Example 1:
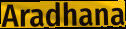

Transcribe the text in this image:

Aradhana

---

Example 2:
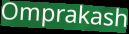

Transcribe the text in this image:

Omprakash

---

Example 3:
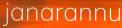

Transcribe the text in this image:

janarannu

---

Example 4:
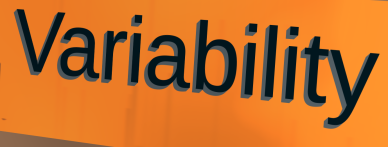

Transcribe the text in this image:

Variability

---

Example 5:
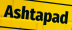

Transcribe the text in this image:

Ashtapad